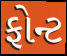
ફોન્ટ